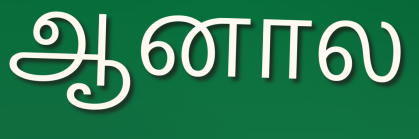
ஆனால